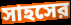
সাহসের